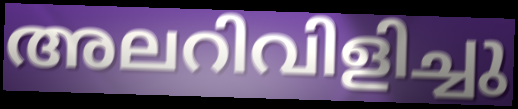
അലറിവിളിച്ചു